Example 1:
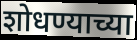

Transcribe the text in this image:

शोधण्याच्या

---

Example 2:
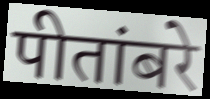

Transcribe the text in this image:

पीतांबरे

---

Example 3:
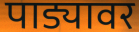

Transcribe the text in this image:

पाड्यावर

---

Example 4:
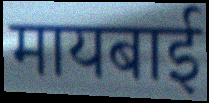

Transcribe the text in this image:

मायबाई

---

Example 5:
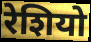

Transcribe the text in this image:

रेशियो